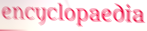
encyclopaedia